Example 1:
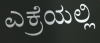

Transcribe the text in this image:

ಎಕ್ರೆಯಲ್ಲಿ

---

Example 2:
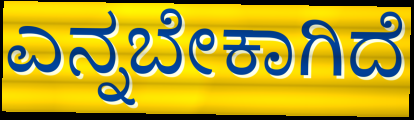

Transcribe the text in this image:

ಎನ್ನಬೇಕಾಗಿದೆ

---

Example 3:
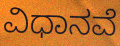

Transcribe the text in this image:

ವಿಧಾನವೆ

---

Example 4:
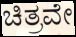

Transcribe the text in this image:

ಚಿತ್ರವೇ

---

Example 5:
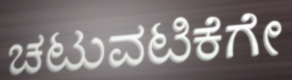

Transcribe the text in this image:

ಚಟುವಟಿಕೆಗೇ